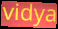
vidya